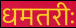
धमतरीः